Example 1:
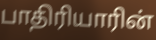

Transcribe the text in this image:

பாதிரியாரின்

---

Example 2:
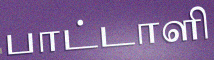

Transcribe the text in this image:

பாட்டாளி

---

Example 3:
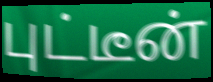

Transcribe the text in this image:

புட்டீன்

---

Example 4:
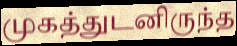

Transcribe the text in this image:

முகத்துடனிருந்த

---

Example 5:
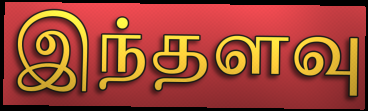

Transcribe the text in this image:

இந்தளவு